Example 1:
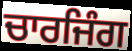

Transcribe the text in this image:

ਚਾਰਜਿੰਗ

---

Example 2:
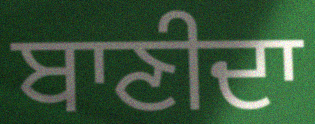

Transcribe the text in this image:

ਬਾਣੀਦਾ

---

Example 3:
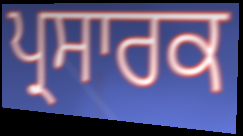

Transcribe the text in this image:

ਪ੍ਰਸਾਰਕ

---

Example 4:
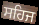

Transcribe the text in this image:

ਸਹਿਜ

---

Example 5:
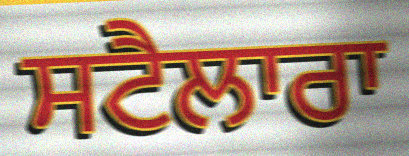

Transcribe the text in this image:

ਸਟੈਲਾਰਾ